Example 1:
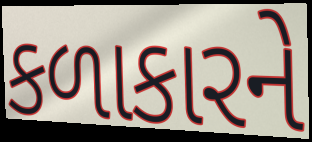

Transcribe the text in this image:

કળાકારને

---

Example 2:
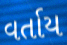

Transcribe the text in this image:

વર્તાય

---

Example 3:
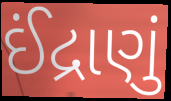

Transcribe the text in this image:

ઈંદ્રાણું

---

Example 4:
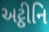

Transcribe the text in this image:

અટ્ઠીનિ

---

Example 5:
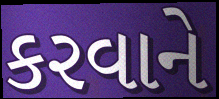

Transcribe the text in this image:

કરવાને